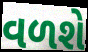
વળશે